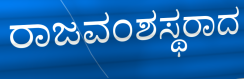
ರಾಜವಂಶಸ್ಥರಾದ